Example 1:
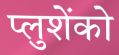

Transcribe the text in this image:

प्लुशेंको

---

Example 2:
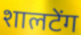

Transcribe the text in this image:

शालटेंग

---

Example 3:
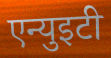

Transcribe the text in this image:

एन्युइटी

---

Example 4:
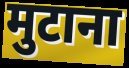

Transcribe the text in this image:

मुटाना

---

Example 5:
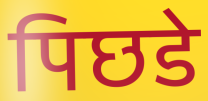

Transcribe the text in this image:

पिछडे